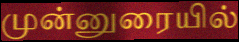
முன்னுரையில்